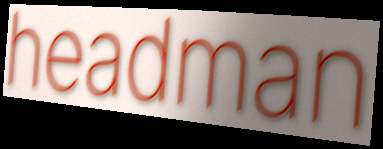
headman